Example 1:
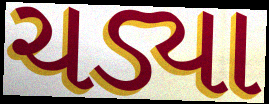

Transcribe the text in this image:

ચડ્યા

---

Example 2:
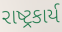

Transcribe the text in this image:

રાષ્ટ્રકાર્ય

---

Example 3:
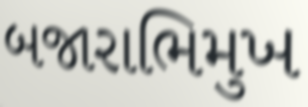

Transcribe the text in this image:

બજારાભિમુખ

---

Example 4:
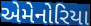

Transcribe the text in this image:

એમેનોરિયા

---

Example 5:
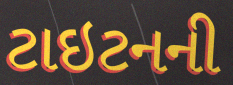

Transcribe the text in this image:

ટાઇટનની